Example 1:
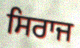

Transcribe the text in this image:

ਸਿਰਾਜ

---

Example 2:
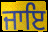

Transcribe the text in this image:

ਜਾਇ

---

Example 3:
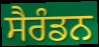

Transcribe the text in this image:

ਸੈਰੰਡਨ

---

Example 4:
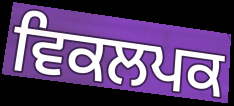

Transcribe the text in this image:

ਵਿਕਲਪਕ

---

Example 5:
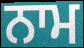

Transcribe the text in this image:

ਨਾਮ